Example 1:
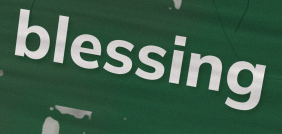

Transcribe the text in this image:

blessing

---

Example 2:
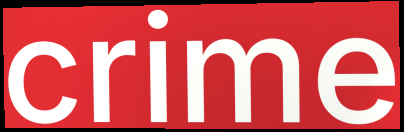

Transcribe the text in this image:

crime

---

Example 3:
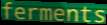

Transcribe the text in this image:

ferments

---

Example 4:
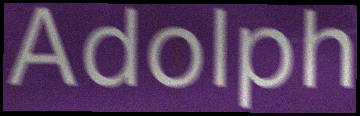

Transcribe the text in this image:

Adolph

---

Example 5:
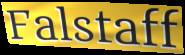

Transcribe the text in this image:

Falstaff